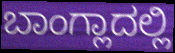
ಬಾಂಗ್ಲಾದಲ್ಲಿ